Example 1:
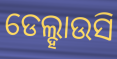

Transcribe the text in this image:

ଡେଲ୍ହାଉସି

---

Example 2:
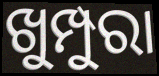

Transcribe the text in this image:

ଖୁମ୍ପୁରା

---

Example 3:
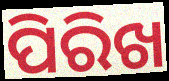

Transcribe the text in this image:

ପିରିଖ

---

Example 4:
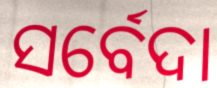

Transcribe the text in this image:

ସର୍ବେଦା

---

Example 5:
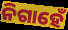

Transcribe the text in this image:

ନିଗାହେଁ